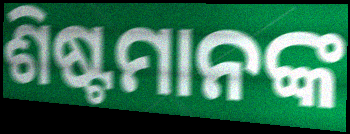
ଶିଷ୍ଟମାନଙ୍କ